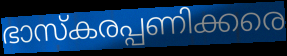
ഭാസ്കരപ്പണിക്കരെ